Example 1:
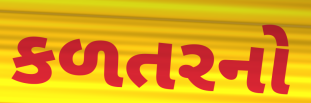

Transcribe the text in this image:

કળતરનો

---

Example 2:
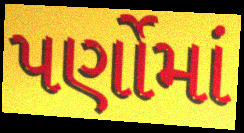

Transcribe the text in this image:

પર્ણોમાં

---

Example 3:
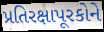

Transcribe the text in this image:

પ્રતિરક્ષાપૂરકોને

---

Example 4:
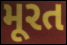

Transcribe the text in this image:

મૂરત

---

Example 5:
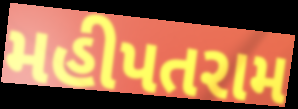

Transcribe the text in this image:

મહીપતરામ